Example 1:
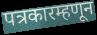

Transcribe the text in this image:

पत्रकारम्हणून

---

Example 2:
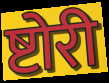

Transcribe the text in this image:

ष्टोरी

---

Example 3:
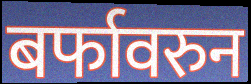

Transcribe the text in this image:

बर्फावरुन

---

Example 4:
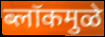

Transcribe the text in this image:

ब्लॉकमुळे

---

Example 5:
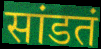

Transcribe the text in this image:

सांडतं